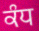
ਕੰਧ